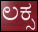
ಲಕ್ಸ